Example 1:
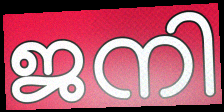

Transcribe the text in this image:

ജനി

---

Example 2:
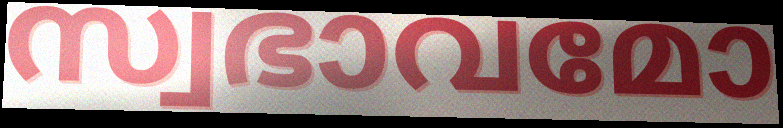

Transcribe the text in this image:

സ്വഭാവമോ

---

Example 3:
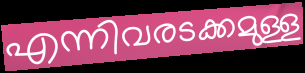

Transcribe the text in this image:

എന്നിവരടക്കമുള്ള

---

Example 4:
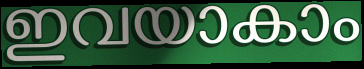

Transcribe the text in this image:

ഇവയാകാം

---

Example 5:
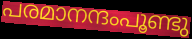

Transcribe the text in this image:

പരമാനന്ദംപൂണ്ടു